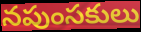
నపుంసకులు